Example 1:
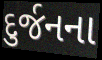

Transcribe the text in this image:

દુર્જનના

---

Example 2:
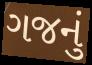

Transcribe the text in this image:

ગજનું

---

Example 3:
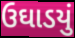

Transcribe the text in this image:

ઉઘાડયું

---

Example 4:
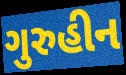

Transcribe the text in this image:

ગુરુહીન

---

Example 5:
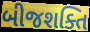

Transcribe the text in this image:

બીજશક્તિ